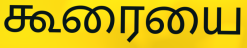
கூரையை